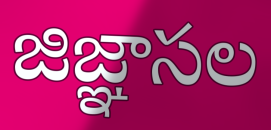
జిజ్ఞాసల